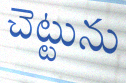
చెట్టును